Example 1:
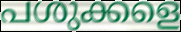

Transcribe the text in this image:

പശുക്കളെ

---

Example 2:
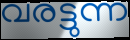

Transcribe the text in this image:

വരട്ടുന്ന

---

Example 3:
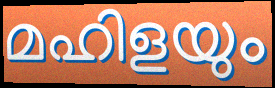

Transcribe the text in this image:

മഹിളയും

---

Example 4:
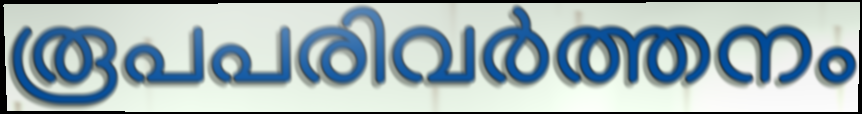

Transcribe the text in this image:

രൂപപരിവർത്തനം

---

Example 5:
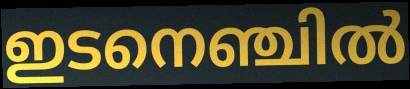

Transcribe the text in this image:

ഇടനെഞ്ചിൽ